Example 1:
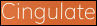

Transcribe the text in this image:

Cingulate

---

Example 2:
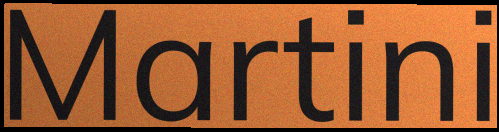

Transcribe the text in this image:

Martini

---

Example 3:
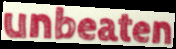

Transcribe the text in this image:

unbeaten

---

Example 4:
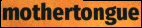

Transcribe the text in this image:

mothertongue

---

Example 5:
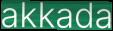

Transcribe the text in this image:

akkada